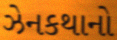
ઝેનકથાનો